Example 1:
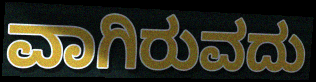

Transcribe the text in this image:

ವಾಗಿರುವದು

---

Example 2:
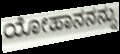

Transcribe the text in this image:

ಯೋಹಾನನನ್ನು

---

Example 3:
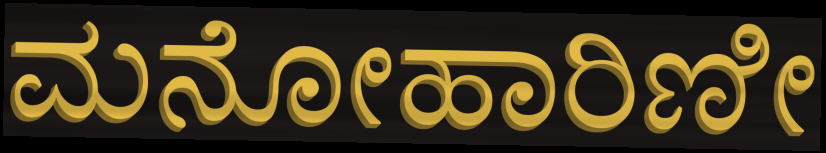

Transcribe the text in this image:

ಮನೋಹಾರಿಣೀ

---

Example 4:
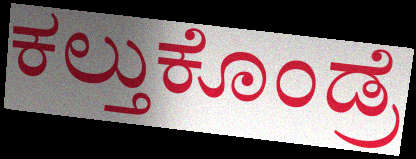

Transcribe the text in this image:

ಕಲ್ತುಕೊಂಡ್ರೆ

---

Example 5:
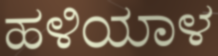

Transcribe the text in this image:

ಹಳಿಯಾಳ